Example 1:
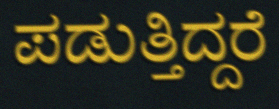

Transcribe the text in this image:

ಪಡುತ್ತಿದ್ದರೆ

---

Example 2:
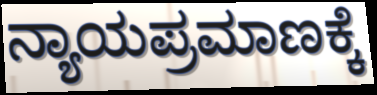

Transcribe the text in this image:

ನ್ಯಾಯಪ್ರಮಾಣಕ್ಕೆ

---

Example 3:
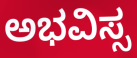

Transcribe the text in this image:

ಅಭವಿಸ್ಸ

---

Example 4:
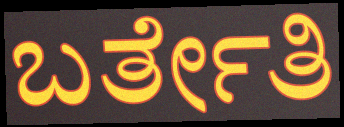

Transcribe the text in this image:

ಬರ್ತೇತಿ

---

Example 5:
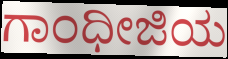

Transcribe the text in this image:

ಗಾಂಧೀಜಿಯ